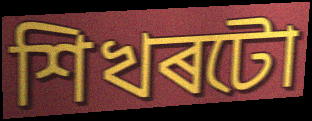
শিখৰটো